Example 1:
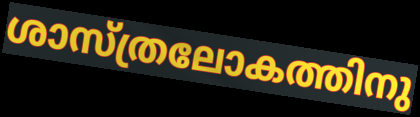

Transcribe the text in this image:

ശാസ്ത്രലോകത്തിനു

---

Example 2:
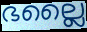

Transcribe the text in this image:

ഭല്ലൈ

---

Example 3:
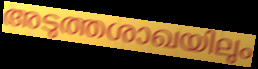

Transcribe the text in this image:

അടുത്തശാഖയിലും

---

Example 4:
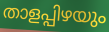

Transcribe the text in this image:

താളപ്പിഴയും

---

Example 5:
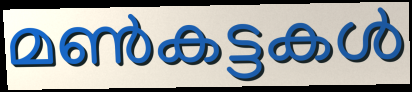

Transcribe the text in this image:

മൺകട്ടകൾ